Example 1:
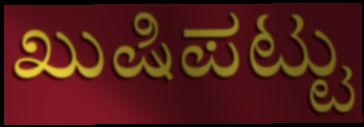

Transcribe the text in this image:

ಖುಷಿಪಟ್ಟು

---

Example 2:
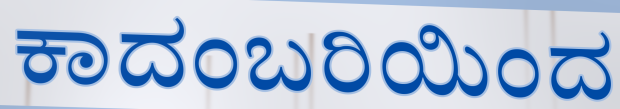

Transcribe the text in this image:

ಕಾದಂಬರಿಯಿಂದ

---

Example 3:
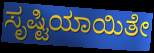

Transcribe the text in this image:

ಸೃಷ್ಟಿಯಾಯಿತೇ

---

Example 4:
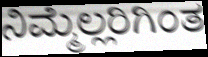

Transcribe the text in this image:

ನಿಮ್ಮೆಲ್ಲರಿಗಿಂತ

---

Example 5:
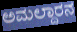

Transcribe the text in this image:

ಅಮಲ್ದಾರನ